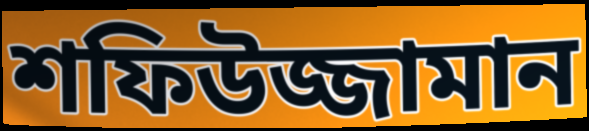
শফিউজ্জামান